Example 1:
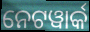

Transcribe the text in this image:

ନେଟୱାର୍କ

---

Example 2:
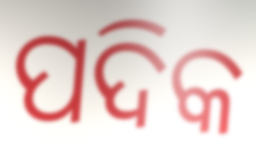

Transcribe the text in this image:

ପଦିକ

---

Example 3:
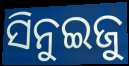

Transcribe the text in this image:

ସିନୁଇଜୁ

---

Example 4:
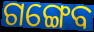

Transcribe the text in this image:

ଗଙ୍ଗେବ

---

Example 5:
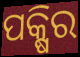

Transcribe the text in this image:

ପକ୍ଷିର